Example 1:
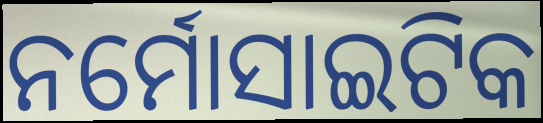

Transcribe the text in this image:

ନର୍ମୋସାଇଟିକ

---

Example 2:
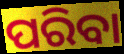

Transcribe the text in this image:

ପରିବା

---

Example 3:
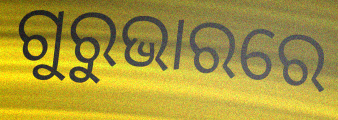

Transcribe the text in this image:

ଗୁରୁଭାରରେ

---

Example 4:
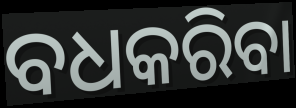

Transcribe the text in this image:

ବଧକରିବା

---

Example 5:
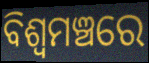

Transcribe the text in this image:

ବିଶ୍ୱମଞ୍ଚରେ